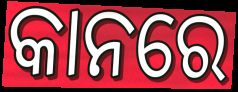
କାନରେ